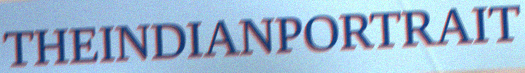
THEINDIANPORTRAIT